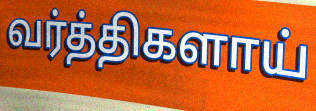
வர்த்திகளாய்